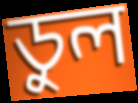
ডুল